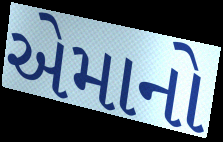
એમાનો